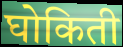
घोकिती